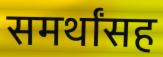
समर्थांसह